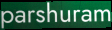
parshuram